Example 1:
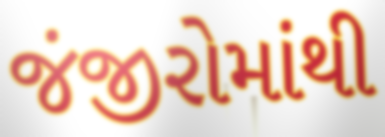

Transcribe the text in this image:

જંજીરોમાંથી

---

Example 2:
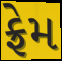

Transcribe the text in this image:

ફ્રેમ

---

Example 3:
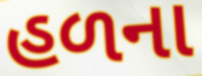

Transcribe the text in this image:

હળના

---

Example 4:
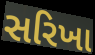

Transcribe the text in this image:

સરિખા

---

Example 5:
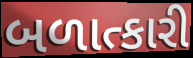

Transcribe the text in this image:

બળાત્કારી